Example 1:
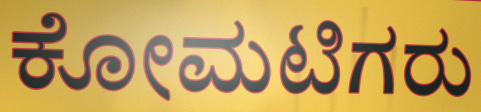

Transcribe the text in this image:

ಕೋಮಟಿಗರು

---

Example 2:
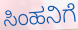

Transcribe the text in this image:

ಸಿಂಹನಿಗೆ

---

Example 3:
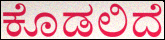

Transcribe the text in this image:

ಕೊಡಲಿದೆ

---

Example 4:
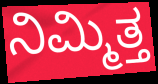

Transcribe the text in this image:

ನಿಮ್ಮಿತ್ತ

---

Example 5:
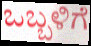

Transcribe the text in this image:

ಒಬ್ಬಳಿಗೆ